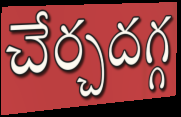
చేర్చదగ్గ